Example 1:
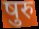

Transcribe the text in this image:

षुरु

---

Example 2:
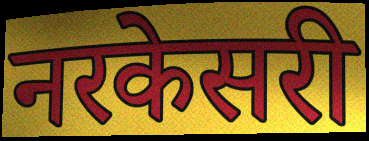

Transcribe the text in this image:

नरकेसरी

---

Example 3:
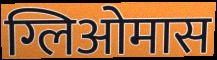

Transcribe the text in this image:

ग्लिओमास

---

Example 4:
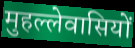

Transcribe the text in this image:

मुहल्लेवासियों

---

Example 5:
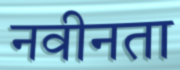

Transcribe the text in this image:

नवीनता